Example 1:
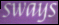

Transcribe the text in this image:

sways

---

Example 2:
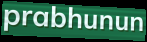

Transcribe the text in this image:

prabhunun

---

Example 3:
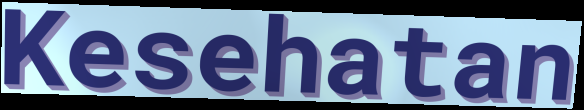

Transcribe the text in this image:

Kesehatan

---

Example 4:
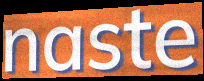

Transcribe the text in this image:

naste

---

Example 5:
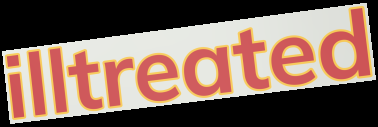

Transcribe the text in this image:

illtreated